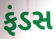
ફંડસ